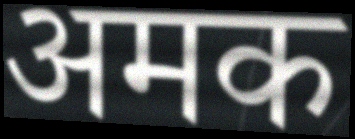
अमक